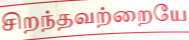
சிறந்தவற்றையே